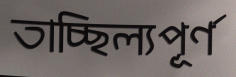
তাচ্ছিল্যপূর্ণ